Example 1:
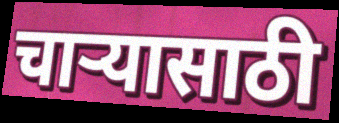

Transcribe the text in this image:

चार्‍यासाठी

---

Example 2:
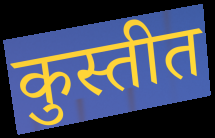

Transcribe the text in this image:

कुस्तीत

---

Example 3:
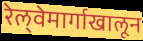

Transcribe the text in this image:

रेल्वेमार्गाखालून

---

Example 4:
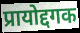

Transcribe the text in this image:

प्रायोद्दगक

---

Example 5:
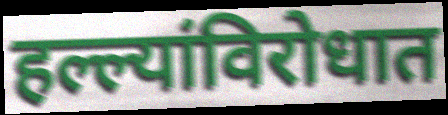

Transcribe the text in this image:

हल्ल्यांविरोधात